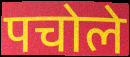
पचोले